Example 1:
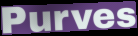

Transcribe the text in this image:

Purves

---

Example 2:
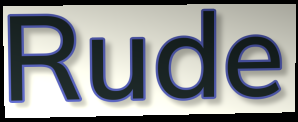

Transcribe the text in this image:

Rude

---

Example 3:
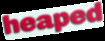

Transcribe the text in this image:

heaped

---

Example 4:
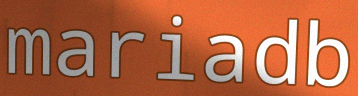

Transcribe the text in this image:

mariadb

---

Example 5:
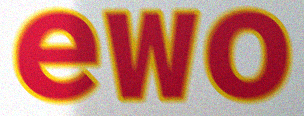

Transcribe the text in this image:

ewo